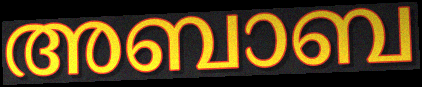
അബാബ